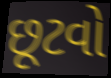
છૂટવો